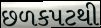
છળકપટથી